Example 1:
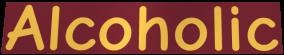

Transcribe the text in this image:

Alcoholic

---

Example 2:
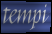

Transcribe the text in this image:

tempi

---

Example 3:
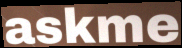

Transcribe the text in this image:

askme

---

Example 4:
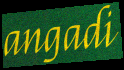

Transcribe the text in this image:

angadi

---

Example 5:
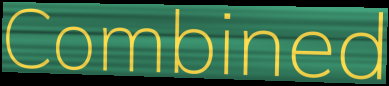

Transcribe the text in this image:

Combined